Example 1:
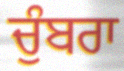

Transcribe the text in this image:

ਚੁੰਬਰਾ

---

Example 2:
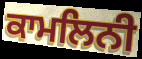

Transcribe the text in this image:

ਕਾਮਲਿਨੀ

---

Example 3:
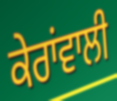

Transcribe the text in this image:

ਕੇਰਾਂਵਾਲੀ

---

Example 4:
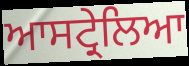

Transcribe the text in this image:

ਆਸਟ੍ਰੇਲਿਆ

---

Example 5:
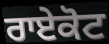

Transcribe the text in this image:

ਰਾਏਕੋਟ